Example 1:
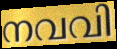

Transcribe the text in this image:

നവവി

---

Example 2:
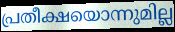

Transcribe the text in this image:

പ്രതീക്ഷയൊന്നുമില്ല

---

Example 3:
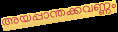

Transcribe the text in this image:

അയപ്പാന്തക്കവണ്ണം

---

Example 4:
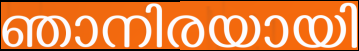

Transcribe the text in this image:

ഞാനിരയായി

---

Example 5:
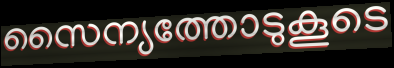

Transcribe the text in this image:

സൈന്യത്തോടുകൂടെ